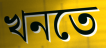
খনতে